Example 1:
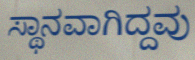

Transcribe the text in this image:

ಸ್ಥಾನವಾಗಿದ್ದವು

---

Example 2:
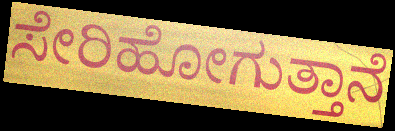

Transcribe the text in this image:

ಸೇರಿಹೋಗುತ್ತಾನೆ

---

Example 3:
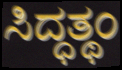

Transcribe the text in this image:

ಸಿದ್ಧತ್ಥಂ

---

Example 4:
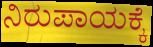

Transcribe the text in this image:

ನಿರುಪಾಯಕ್ಕೆ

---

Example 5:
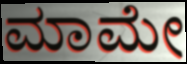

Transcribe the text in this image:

ಮಾಮೇ